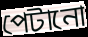
পেটানো